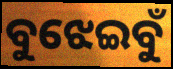
ବୁଝେଇବୁଁ